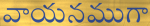
వాయనముగా